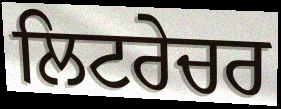
ਲਿਟਰੇਚਰ